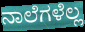
ನಾಲೆಗಳೆಲ್ಲ